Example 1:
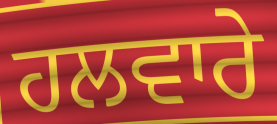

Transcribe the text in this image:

ਹਲਵਾਰੇ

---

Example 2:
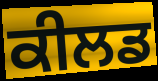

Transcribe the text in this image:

ਕੀਲਡ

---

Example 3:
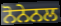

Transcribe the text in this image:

ਨੋਨੇਨਲ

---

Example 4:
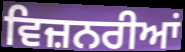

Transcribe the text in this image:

ਵਿਜ਼ਨਰੀਆਂ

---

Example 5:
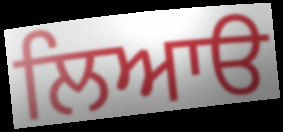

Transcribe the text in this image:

ਲਿਆੳ